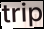
trip